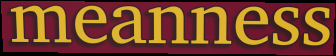
meanness